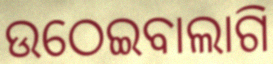
ଉଠେଇବାଲାଗି